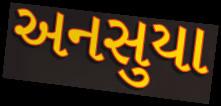
અનસુયા